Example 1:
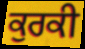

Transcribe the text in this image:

ਕੁਰਕੀ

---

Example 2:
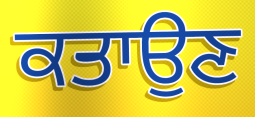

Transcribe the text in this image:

ਕਤਾਉਣ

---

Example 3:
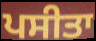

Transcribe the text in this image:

ਪਸੀਤਾ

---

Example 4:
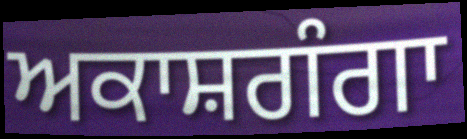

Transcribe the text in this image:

ਅਕਾਸ਼ਗੰਗਾ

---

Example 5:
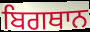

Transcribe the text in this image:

ਬਿਗਥਾਨ